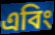
এবিং